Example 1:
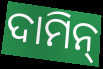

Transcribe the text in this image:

ଦାମିନ୍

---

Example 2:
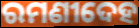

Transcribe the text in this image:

ରମଣୀଦେହ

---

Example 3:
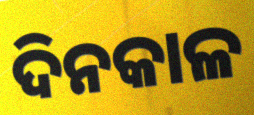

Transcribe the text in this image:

ଦିନକାଳ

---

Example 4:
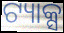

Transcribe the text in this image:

ଟ୍ୟାକ୍ସ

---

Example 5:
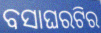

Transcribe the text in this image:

ବସାଘରଟିର